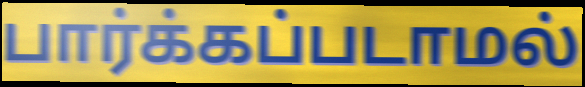
பார்க்கப்படாமல்